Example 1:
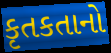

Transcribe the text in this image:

કૃતકતાનો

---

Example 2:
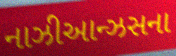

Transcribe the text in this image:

નાઝીઆન્ઝસના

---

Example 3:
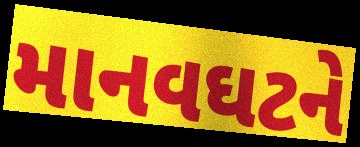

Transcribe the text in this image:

માનવઘટને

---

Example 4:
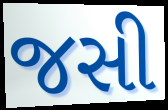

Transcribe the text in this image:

જસી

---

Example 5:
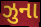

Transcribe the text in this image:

ઝુના